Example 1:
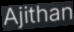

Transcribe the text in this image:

Ajithan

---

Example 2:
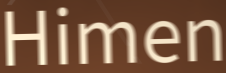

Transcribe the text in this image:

Himen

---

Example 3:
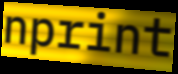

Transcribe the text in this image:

nprint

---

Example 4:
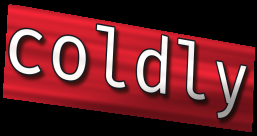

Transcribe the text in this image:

coldly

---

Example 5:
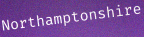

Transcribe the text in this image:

Northamptonshire